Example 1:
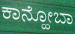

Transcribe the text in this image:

ಕಾನ್ಹೋಬಾ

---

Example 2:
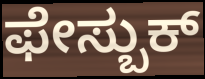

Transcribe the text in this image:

ಫೇಸ್ಬುಕ್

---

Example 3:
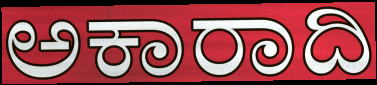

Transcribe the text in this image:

ಅಕಾರಾದಿ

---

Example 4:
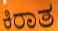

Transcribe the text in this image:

ಕಿರಾತ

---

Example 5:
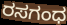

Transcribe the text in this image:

ರಸಗಂಧ